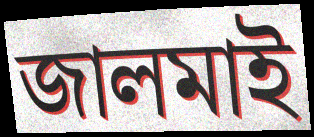
জালমাই